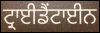
ਟ੍ਰਾਈਡੈਂਟਾਈਨ